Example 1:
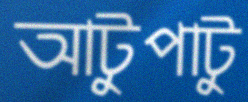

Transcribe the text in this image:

আটুপাটু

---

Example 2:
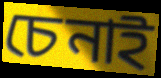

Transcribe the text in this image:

চেনাই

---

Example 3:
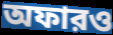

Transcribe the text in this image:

অফারও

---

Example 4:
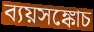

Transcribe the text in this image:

ব্যয়সঙ্কোচ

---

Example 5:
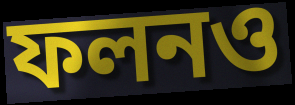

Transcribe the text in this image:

ফলনও